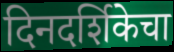
दिनदर्शिकेचा